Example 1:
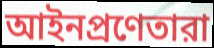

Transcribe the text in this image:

আইনপ্রণেতারা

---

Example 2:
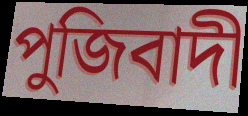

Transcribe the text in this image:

পুজিবাদী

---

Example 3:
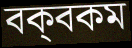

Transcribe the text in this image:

বক্‌বকম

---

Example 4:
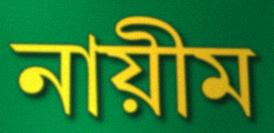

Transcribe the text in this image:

নায়ীম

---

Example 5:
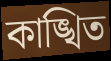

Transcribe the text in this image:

কাঙ্খিত